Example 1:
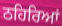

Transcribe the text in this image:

ਠਹਿਰਿਆਂ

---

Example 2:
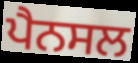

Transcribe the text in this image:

ਪੈਨਸਲ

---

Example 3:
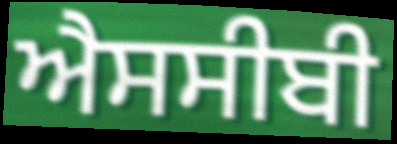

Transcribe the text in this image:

ਐਸਸੀਬੀ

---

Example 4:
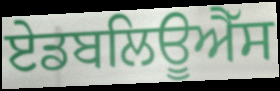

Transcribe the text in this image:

ਏਡਬਲਿਊਐੱਸ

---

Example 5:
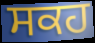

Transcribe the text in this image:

ਸਕਹ